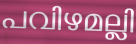
പവിഴമല്ലി